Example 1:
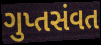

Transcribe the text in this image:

ગુપ્તસંવત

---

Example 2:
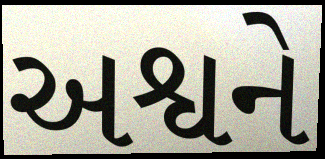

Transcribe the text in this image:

અશ્વને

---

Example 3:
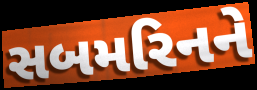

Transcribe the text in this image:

સબમરિનને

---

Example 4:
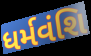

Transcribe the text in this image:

ધર્મવંશિ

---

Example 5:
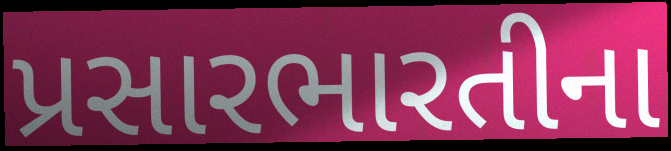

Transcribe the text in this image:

પ્રસારભારતીના